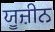
ਯੂਜ਼ੀਨ